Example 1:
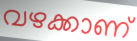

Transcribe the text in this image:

വഴക്കാണ്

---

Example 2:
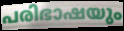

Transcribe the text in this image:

പരിഭാഷയും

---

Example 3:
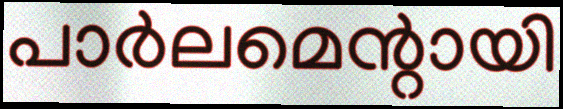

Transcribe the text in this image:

പാർലമെന്റായി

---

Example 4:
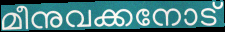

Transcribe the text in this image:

മീനുവക്കനോട്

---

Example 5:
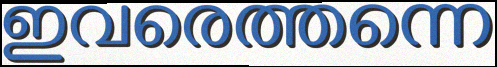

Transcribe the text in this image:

ഇവരെത്തന്നെ